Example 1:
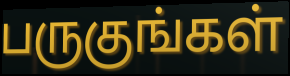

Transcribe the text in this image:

பருகுங்கள்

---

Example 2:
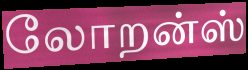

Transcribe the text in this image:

லோறன்ஸ்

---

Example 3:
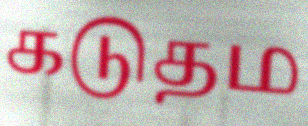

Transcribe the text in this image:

கடுதம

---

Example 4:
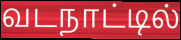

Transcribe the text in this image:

வடநாட்டில்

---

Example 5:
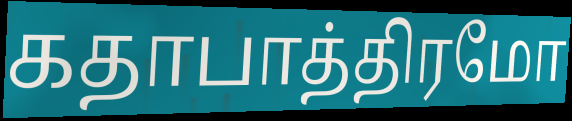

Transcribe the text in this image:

கதாபாத்திரமோ